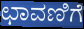
ಛಾವಣಿಗೆ